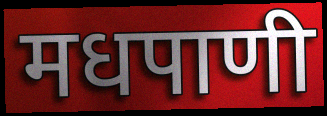
मधपाणी